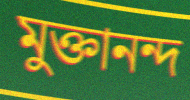
মুক্তানন্দ